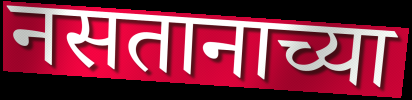
नसतानाच्या